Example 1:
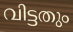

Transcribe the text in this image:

വിട്ടതും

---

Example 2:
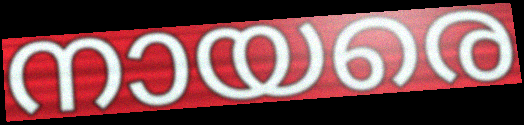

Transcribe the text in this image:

നായരെ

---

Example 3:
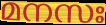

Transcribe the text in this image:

മനസഃ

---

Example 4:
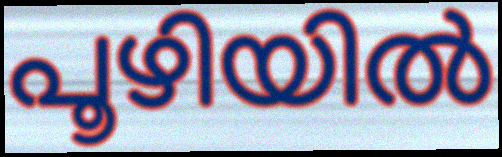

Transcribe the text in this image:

പൂഴിയിൽ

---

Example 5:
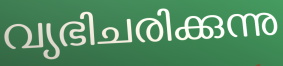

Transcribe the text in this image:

വ്യഭിചരിക്കുന്നു